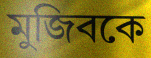
মুজিবকে